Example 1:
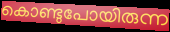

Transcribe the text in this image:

കൊണ്ടുപോയിരുന്ന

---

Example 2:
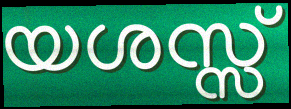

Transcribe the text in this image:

യശസ്സ്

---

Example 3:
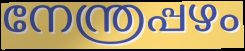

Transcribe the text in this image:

നേന്ത്രപ്പഴം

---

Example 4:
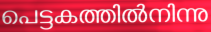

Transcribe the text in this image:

പെട്ടകത്തിൽനിന്നു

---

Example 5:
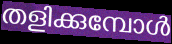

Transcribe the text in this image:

തളിക്കുമ്പോൾ